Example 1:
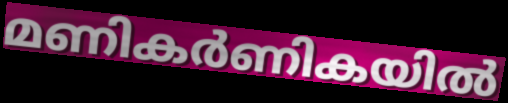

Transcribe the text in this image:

മണികർണികയിൽ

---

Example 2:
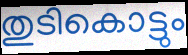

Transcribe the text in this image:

തുടികൊട്ടും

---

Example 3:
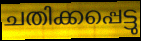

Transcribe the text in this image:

ചതിക്കപ്പെട്ടു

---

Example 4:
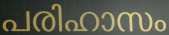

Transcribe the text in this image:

പരിഹാസം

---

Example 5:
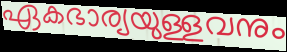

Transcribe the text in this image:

ഏകഭാര്യയുള്ളവനും